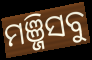
ମଞ୍ଜିସବୁ